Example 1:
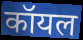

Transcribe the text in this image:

कॉयल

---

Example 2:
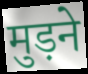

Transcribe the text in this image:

मुड़ने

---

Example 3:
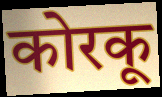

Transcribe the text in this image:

कोरकू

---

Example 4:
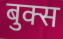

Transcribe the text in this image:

बुक्स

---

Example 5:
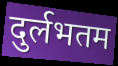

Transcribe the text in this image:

दुर्लभतम